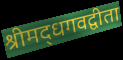
श्रीमद्धगवद्वीता